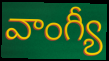
వాంగ్యీ